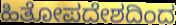
ಹಿತೋಪದೇಶದಿಂದ